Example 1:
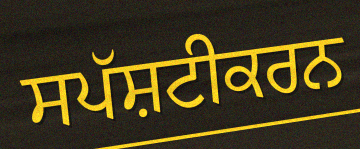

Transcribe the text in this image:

ਸਪੱਸ਼ਟੀਕਰਨ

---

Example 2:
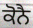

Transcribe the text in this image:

ਕੋਨੈ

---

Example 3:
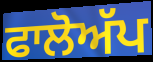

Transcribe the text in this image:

ਫਾਲੋਅੱਪ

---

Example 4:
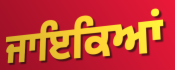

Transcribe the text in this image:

ਜਾਇਕਿਆਂ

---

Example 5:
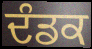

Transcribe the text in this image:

ਦੰਡਕ